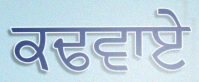
ਕਢਵਾਏ